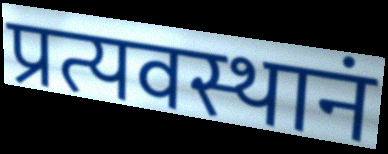
प्रत्यवस्थानं